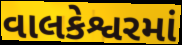
વાલકેશ્વરમાં